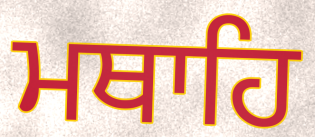
ਮਥਾਹਿ